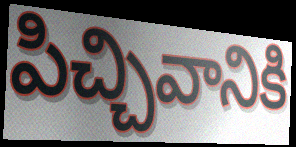
పిచ్చివానికి